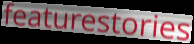
featurestories